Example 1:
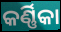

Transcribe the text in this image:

କର୍ଣ୍ଣିକା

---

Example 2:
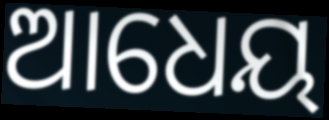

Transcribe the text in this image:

ଆଧେୟ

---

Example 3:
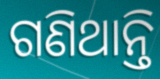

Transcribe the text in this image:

ଗଣିଥାନ୍ତି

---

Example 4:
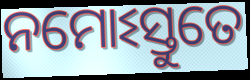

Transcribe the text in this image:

ନମୋଽସ୍ତୁତେ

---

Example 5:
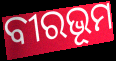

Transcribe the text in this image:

ବୀରଭୂମ